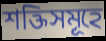
শক্তিসমূহে